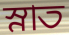
স্নাত